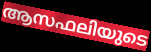
ആസഫലിയുടെ